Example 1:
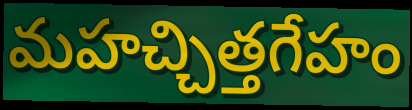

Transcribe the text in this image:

మహచ్చిత్తగేహం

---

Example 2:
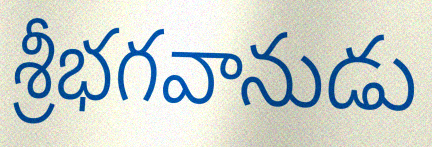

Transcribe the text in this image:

శ్రీభగవానుడు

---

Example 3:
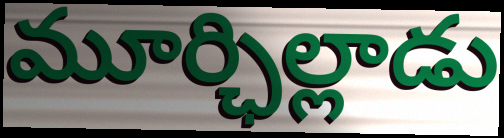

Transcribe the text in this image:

మూర్ఛిల్లాడు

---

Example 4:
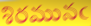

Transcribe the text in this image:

శిరమునఁ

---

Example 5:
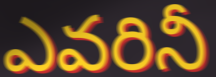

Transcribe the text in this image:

ఎవరినీ